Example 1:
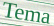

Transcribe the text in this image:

Tema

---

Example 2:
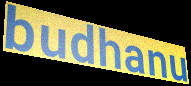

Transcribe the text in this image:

budhanu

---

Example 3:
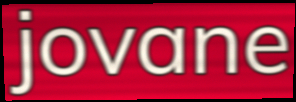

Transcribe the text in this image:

jovane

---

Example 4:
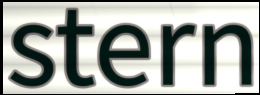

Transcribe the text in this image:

stern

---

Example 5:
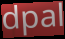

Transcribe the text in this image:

dpal